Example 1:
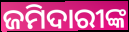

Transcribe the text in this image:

ଜମିଦାରୀଙ୍କ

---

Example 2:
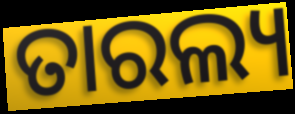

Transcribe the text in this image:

ତାରଲ୍ୟ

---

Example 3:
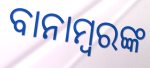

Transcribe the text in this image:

ବାନାମ୍ବରଙ୍କ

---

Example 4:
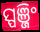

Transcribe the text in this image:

ସ୍ପଞ୍ଜିଂ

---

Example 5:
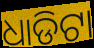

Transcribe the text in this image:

ଧାଡିଟା